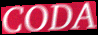
CODA